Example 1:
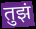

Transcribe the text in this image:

तुझं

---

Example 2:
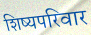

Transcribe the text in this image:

शिष्यपरिवार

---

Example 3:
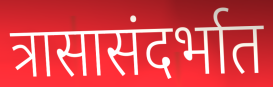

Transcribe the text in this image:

त्रासासंदर्भात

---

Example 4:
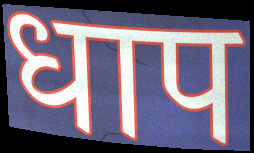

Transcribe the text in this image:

धाप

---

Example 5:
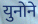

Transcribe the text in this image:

युनोने